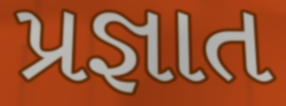
પ્રજ્ઞાત